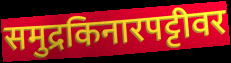
समुद्रकिनारपट्टीवर